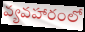
వ్యవహారంలో